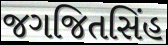
જગજિતસિંહ